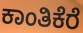
ಕಾಂತಿಕೆರೆ